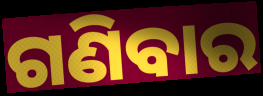
ଗଣିବାର